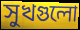
সুখগুলো